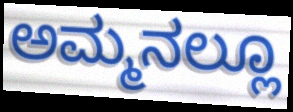
ಅಮ್ಮನಲ್ಲೂ